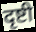
दृष्टी